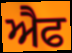
ਐਫ